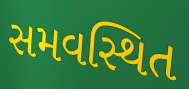
સમવસ્થિત